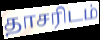
தாசரிடம்